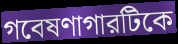
গবেষণাগারটিকে